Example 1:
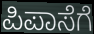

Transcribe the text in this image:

ಪಿಪಾಸೆಗೆ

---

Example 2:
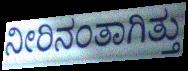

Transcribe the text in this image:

ನೀರಿನಂತಾಗಿತ್ತು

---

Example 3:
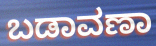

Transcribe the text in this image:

ಬಡಾವಣಾ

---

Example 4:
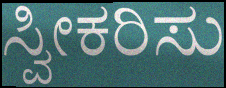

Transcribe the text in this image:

ಸ್ವೀಕರಿಸು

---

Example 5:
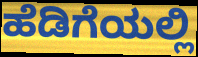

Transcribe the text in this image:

ಹೆಡಿಗೆಯಲ್ಲಿ